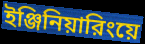
ইঞ্জিনিয়ারিংয়ে